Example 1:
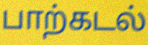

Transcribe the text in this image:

பாற்கடல்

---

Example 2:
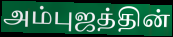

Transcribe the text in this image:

அம்புஜத்தின்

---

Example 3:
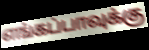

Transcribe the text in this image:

எங்கப்பாவுக்கு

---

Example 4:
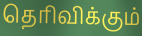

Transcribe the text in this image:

தெரிவிக்கும்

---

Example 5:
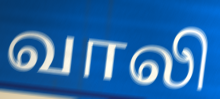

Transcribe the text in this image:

வாலி